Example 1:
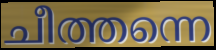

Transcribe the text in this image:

ചീത്തന്നെ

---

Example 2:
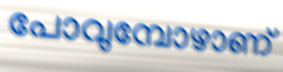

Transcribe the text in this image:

പോവുമ്പോഴാണ്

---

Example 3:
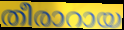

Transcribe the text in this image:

തീരാറായ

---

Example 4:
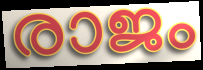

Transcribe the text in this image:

രാജം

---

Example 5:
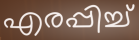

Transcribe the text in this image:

എരപ്പിച്ച്